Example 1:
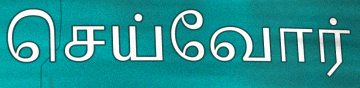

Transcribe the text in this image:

செய்வோர்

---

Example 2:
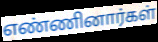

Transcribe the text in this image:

எண்ணினார்கள்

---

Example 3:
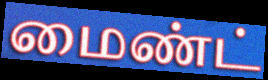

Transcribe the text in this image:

மைண்ட்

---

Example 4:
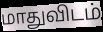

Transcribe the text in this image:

மாதுவிடம்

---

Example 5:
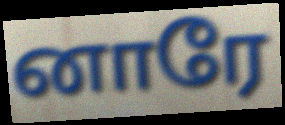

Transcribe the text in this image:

னாரே